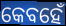
କେବହେଁ